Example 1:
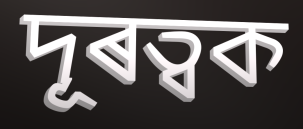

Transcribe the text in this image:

দূৰত্বক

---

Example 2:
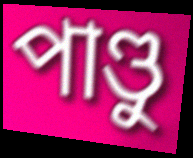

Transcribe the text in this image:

পাণ্ডু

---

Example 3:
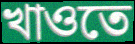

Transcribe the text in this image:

খাওতে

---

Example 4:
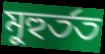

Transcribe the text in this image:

মুহুৰ্তত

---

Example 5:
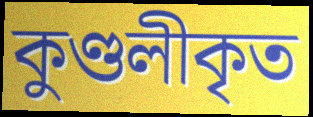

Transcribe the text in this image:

কুণ্ডলীকৃত